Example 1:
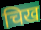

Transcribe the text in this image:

चिख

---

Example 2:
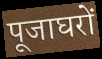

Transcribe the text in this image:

पूजाघरों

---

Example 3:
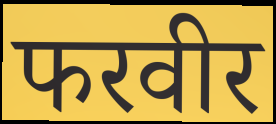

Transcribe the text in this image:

फरवीर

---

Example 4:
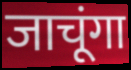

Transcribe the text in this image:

जाचूंगा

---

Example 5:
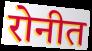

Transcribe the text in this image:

रोनीत